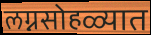
लग्नसोहळ्यात